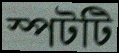
স্পটটি